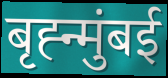
बृह्न्मुंबई